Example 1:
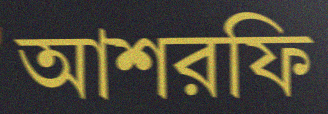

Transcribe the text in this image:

আশরফি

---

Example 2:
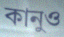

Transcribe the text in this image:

কানুও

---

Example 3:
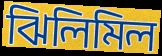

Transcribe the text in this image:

ঝিলিমিল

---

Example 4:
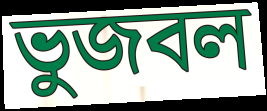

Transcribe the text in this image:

ভুজবল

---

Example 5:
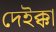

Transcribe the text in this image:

দেইক্কা